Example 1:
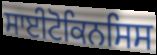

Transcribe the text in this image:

ਸਾਈਟੋਕਿਨਸਿਸ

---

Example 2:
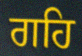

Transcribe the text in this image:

ਗਹਿ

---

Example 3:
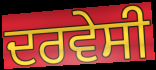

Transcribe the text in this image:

ਦਰਵੇਸੀ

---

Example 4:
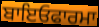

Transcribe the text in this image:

ਬਾਇਓਫਾਰਮਾ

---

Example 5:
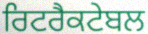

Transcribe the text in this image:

ਰਿਟਰੈਕਟੇਬਲ